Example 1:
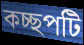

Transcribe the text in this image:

কচ্ছপটি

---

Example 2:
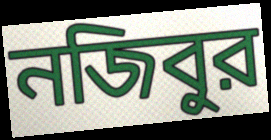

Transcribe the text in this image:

নজিবুর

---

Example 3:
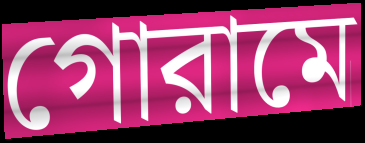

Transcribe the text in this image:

গোরামে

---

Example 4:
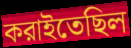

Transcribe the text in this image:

করাইতেছিল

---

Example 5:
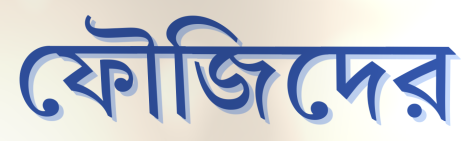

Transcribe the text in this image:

ফৌজিদের